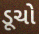
ડૂચો